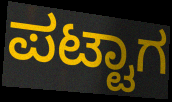
ಪಟ್ಟಾಗ